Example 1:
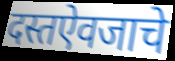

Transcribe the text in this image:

दस्तऐवजाचे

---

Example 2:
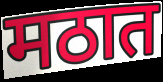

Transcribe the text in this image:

मठात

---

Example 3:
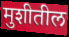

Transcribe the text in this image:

मुशीतील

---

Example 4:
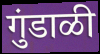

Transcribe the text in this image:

गुंडाळी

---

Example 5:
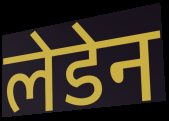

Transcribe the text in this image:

लेडेन